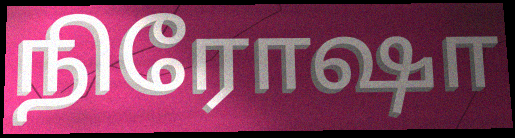
நிரோஷா